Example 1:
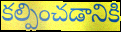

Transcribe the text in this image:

కల్పించడానికి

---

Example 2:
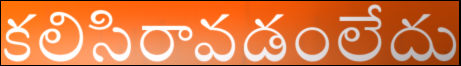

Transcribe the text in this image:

కలిసిరావడంలేదు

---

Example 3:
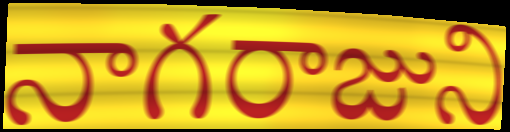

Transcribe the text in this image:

నాగరాజుని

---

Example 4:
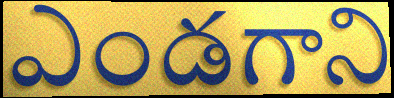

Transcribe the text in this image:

ఎండగాని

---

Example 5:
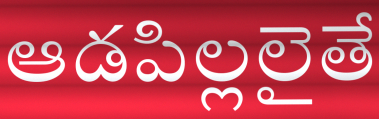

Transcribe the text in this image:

ఆడపిల్లలైతే